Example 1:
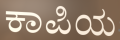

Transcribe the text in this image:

ಕಾಪಿಯ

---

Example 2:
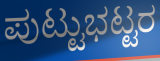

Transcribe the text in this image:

ಪುಟ್ಟುಭಟ್ಟರ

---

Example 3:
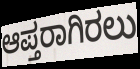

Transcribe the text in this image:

ಆಪ್ತರಾಗಿರಲು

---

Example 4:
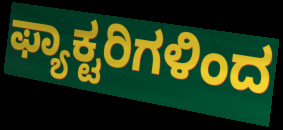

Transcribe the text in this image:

ಫ್ಯಾಕ್ಟರಿಗಳಿಂದ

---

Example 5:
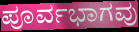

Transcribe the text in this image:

ಪೂರ್ವಭಾಗವು